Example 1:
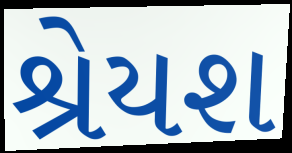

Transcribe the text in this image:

શ્રેયશ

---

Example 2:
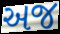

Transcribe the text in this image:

અજ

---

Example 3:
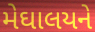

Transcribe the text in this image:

મેઘાલયને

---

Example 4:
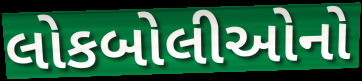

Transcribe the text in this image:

લોકબોલીઓનો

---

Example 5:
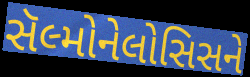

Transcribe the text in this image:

સૅલ્મોનેલોસિસને